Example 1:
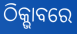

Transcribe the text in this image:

ଠିକ୍ଭାବରେ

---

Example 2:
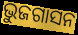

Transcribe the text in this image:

ଭୁଜଗାସନ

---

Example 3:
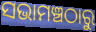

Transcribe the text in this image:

ସଭାମଞ୍ଚଠାରୁ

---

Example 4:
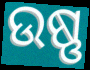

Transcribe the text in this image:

ଉଷ୍ଣ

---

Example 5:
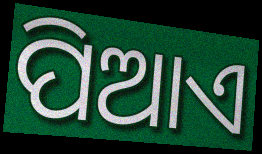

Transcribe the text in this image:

ପିଆଏ